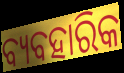
ବ୍ଯବହାରିକ